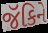
જૅકિને